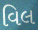
વિલ